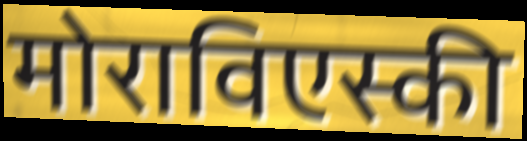
मोराविएस्की